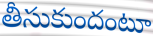
తీసుకుందంటూ